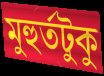
মুহুর্তটুকু